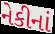
નેકીનાં